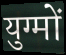
युग्मों